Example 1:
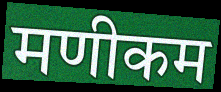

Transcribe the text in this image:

मणीकम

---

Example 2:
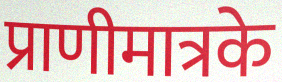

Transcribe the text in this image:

प्राणीमात्रके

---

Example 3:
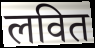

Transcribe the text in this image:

लवित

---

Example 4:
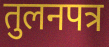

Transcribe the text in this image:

तुलनपत्र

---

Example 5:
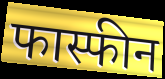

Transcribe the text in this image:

फास्फीन